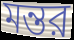
মন্তর